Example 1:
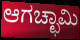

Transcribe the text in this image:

ಆಗಚ್ಛಾಮಿ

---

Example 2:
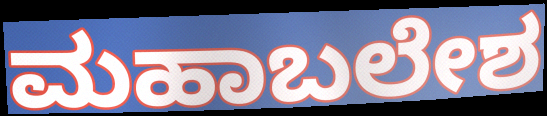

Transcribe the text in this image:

ಮಹಾಬಲೇಶ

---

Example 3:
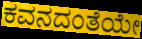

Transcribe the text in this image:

ಕವನದಂತೆಯೇ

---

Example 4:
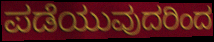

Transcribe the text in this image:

ಪಡೆಯುವುದರಿಂದ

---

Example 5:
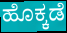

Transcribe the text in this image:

ಹೊಕ್ಕಡೆ